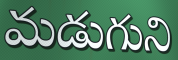
మడుగుని